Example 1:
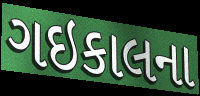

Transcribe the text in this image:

ગઇકાલના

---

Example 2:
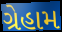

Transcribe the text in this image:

ગ્રેહામ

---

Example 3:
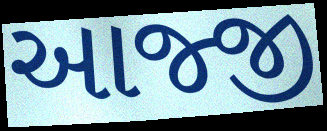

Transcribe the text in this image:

આજ્જી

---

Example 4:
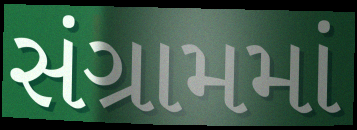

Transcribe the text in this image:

સંગ્રામમાં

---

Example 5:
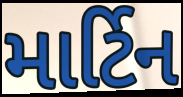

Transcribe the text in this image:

માર્ટિન